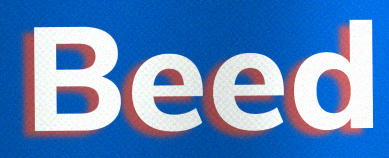
Beed